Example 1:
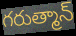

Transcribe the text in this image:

గరుత్మాన్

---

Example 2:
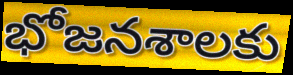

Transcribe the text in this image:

భోజనశాలకు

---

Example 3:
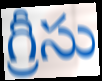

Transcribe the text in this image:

గ్రీసు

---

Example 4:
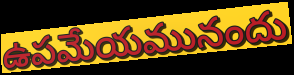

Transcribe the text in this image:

ఉపమేయమునందు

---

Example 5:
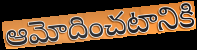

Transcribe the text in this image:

ఆమోదించటానికి